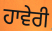
ਹਾਵੇਰੀ